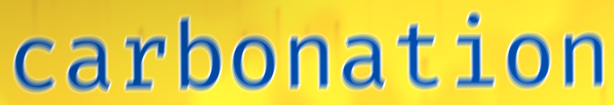
carbonation